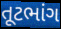
તૂટભાંગ